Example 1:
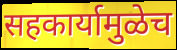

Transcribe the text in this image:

सहकार्यामुळेच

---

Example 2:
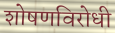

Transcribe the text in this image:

शोषणविरोधी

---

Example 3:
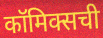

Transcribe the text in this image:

कॉमिक्सची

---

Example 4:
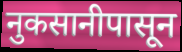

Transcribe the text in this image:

नुकसानीपासून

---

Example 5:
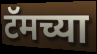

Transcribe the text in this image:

टॅमच्या